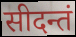
सीदन्तं